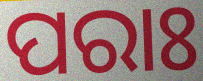
ପରାଃ